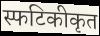
स्फटिकीकृत